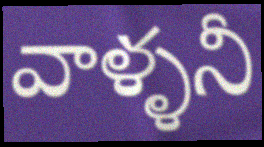
వాళ్ళనీ